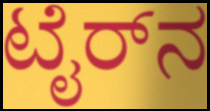
ಟೈರ್‌ನ